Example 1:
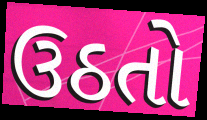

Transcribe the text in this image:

ઉઠતો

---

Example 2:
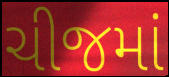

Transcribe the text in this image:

ચીજમાં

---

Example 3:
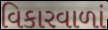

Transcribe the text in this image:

વિકારવાળાં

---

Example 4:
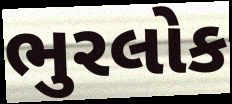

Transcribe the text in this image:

ભુરલોક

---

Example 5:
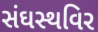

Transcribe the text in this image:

સંઘસ્થવિર